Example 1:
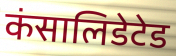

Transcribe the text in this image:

कंसालिडेटेड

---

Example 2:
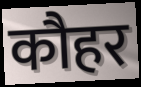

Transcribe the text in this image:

कौहर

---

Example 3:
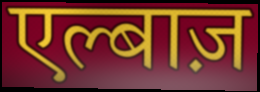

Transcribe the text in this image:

एल्बाज़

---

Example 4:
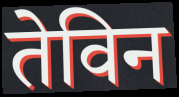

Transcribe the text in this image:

तेविन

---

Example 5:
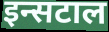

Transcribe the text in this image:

इन्सटाल